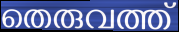
തെരുവത്ത്